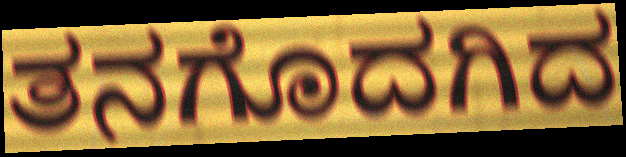
ತನಗೊದಗಿದ